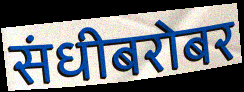
संधीबरोबर